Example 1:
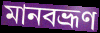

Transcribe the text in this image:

মানবভ্রূণ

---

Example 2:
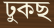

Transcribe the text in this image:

ঢুকছ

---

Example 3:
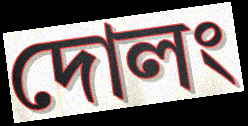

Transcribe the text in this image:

দোলং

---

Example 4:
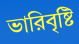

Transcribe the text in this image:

ভারিবৃষ্টি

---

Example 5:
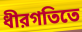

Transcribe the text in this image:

ধীরগতিতে